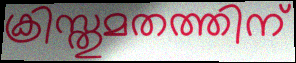
ക്രിസ്തുമതത്തിന്